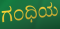
ಗಂಧಿಯ